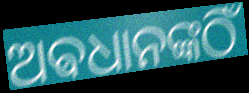
ଅଵଧାନଙ୍କଠିଁ